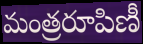
మంత్రరూపిణీ